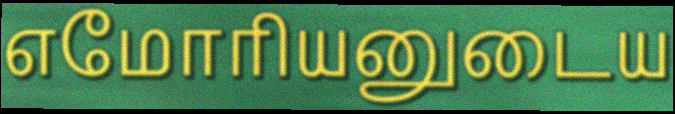
எமோரியனுடைய